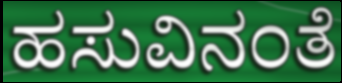
ಹಸುವಿನಂತೆ